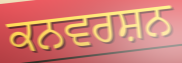
ਕਨਵਰਸ਼ਨ